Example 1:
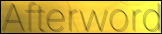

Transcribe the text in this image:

Afterword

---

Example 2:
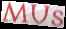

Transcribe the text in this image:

MUs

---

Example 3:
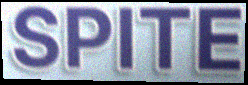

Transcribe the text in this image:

SPITE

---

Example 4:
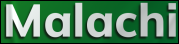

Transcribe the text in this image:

Malachi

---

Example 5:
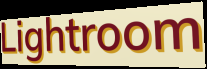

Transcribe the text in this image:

Lightroom